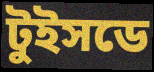
টুইসডে